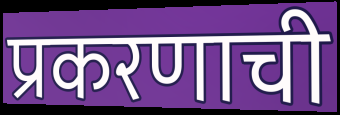
प्रकरणाची